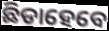
ଛିଡାହେବେ